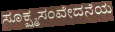
ಸೂಕ್ಷ್ಮಸಂವೇದನೆಯ